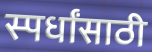
स्पर्धांसाठी